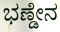
ಭಣ್ಡೇನ